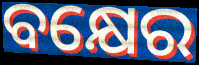
ବକ୍ଷେର